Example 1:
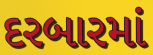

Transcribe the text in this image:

દરબારમાં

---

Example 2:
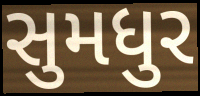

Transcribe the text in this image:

સુમધુર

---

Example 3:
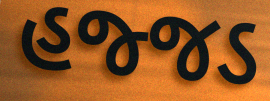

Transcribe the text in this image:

હજ્જડ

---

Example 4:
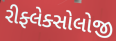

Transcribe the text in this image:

રીફ્લેક્સોલોજી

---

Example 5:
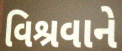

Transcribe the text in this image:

વિશ્રવાને